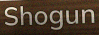
Shogun